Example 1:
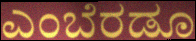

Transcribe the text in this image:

ಎಂಬೆರಡೂ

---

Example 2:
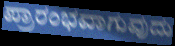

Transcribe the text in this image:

ಪ್ರಾರಂಭವಾಗುವುದು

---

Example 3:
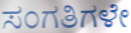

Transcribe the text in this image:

ಸಂಗತಿಗಳೇ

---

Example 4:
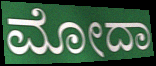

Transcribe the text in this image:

ಮೋದಾ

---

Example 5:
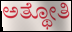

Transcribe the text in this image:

ಅತ್ಥೋತಿ